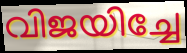
വിജയിച്ചേ